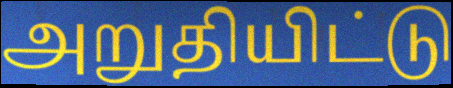
அறுதியிட்டு